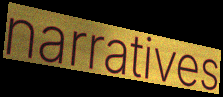
narratives